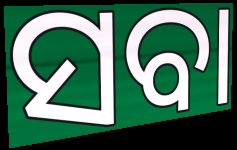
ସବା